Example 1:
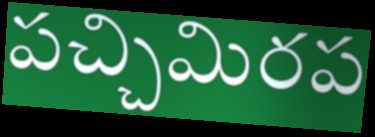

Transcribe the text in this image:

పచ్చిమిరప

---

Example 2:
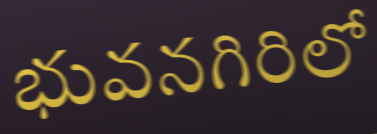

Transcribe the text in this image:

భువనగిరిలో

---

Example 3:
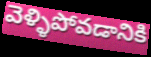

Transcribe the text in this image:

వెళ్ళిపోవడానికి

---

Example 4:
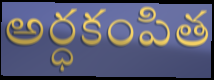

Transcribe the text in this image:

అర్ధకంపిత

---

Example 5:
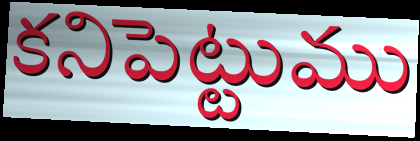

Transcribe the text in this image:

కనిపెట్టుము